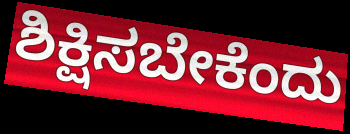
ಶಿಕ್ಷಿಸಬೇಕೆಂದು